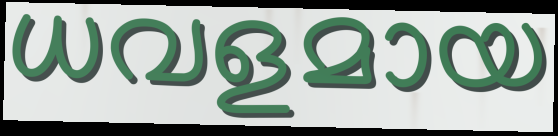
ധവളമായ